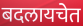
बदलायचेत